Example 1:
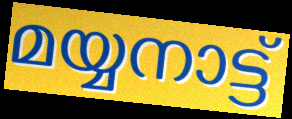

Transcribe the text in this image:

മയ്യനാട്ട്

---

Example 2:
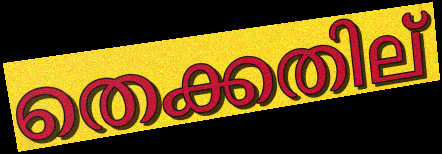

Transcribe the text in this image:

തെക്കതില്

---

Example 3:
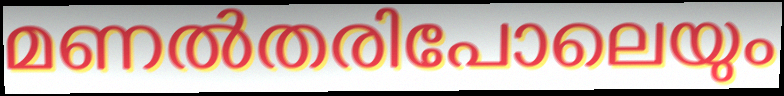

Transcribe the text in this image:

മണൽതരിപോലെയും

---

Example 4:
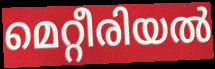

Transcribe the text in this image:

മെറ്റീരിയൽ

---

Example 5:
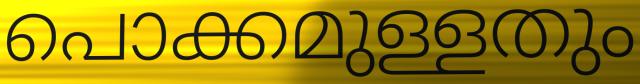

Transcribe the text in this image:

പൊക്കമുള്ളതും